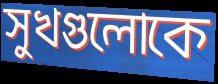
সুখগুলোকে